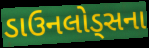
ડાઉનલોડ્સના